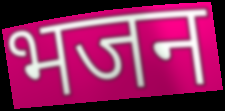
भजन